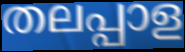
തലപ്പാള